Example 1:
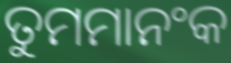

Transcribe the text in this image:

ତୁମମାନଂକ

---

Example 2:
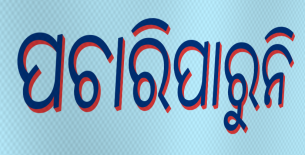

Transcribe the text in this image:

ପଚାରିପାରୁନି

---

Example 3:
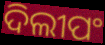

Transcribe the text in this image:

ଦିଲୀପଂ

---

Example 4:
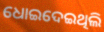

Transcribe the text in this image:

ଧୋଇଦେଇଥିଲି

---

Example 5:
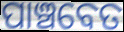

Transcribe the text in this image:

ପାଞ୍ଚବେତ